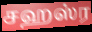
சஹஸ்ர